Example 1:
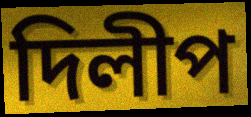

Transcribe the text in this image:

দিলীপ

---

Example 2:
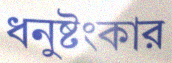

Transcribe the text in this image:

ধনুষ্টংকার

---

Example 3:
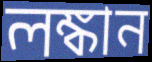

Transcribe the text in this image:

লঙ্কান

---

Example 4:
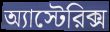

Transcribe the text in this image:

অ্যাস্টেরিক্স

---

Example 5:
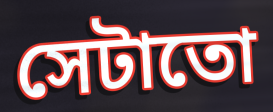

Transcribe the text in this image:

সেটাতো